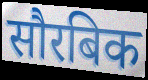
सौरबिक